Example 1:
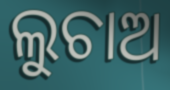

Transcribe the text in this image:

ଲୁଚାଅ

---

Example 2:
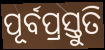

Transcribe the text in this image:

ପୂର୍ବପ୍ରସ୍ତୁତି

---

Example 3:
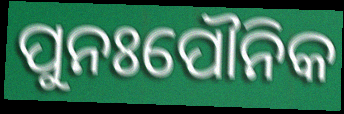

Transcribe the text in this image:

ପୁନଃପୌନିକ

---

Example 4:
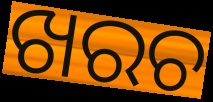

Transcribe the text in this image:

ଖରଚ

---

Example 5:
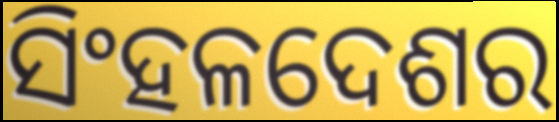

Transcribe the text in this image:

ସିଂହଳଦେଶର